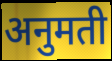
अनुमती